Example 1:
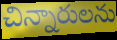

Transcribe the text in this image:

చిన్నారులను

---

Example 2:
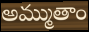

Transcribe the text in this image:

అమ్ముతాం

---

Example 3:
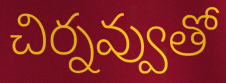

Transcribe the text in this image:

చిర్నవ్వుతో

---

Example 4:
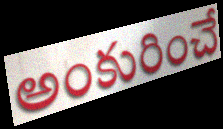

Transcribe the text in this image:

అంకురించే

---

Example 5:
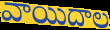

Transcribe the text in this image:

వాయిదాల